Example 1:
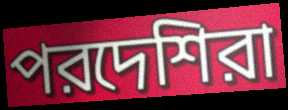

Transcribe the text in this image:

পরদেশিরা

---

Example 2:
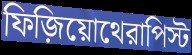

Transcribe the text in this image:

ফিজ়িয়োথেরাপিস্ট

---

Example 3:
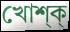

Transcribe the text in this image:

খোশ্ক্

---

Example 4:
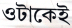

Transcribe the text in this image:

ওটাকেই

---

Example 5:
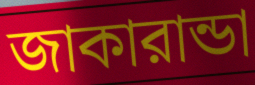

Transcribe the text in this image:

জাকারান্ডা